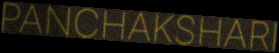
PANCHAKSHARI